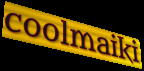
coolmaiki